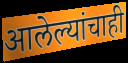
आलेल्यांचाही